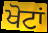
ਖੋਟਾਂ